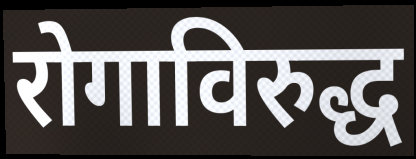
रोगाविरुद्ध